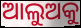
ଆଲୁଅକୁ